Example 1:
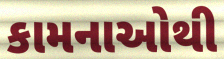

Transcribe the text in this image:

કામનાઓથી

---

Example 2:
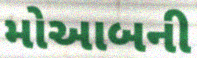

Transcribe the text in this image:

મોઆબની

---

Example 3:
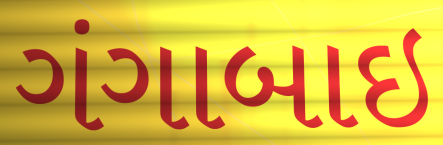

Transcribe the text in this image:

ગંગાબાઇ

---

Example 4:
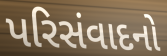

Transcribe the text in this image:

પરિસંવાદનો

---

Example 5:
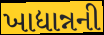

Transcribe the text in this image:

ખાદ્યાન્નની